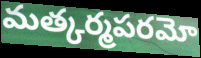
మత్కర్మపరమో